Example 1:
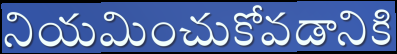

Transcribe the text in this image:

నియమించుకోవడానికి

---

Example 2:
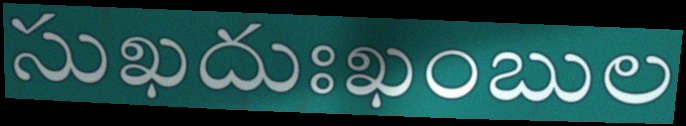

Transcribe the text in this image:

సుఖదుఃఖంబుల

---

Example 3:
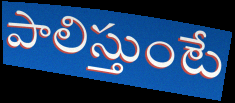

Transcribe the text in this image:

పాలిస్తుంటే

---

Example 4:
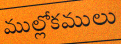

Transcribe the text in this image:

ముల్లోకములు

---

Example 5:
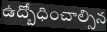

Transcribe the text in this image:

ఉద్బోధించాల్సిన